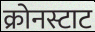
क्रोनस्टाट